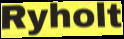
Ryholt